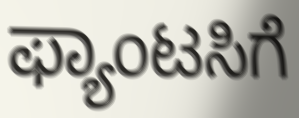
ಫ್ಯಾಂಟಸಿಗೆ